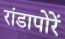
रांडापोरें